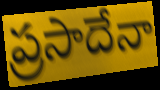
ప్రసాదేనా